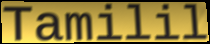
Tamilil